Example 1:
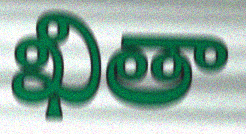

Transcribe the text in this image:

ఖితా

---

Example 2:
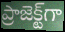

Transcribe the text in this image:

ప్రాజెక్ట్‌గా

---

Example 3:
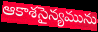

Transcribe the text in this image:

ఆకాశసైన్యమును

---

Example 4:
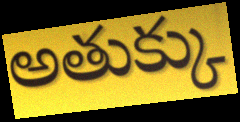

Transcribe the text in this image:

అతుక్కు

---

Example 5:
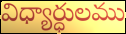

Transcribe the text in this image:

విధ్యార్ధులము